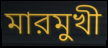
মারমুখী